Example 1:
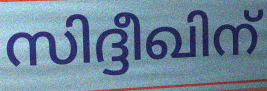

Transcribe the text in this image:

സിദ്ദീഖിന്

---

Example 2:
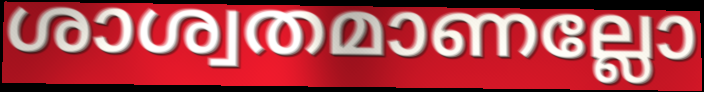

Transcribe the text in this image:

ശാശ്വതമാണല്ലോ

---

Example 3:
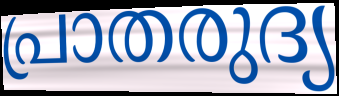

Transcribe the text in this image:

പ്രാതരുദ്യ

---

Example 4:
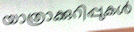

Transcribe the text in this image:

യാത്രാക്കുറിപ്പുകൾ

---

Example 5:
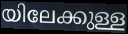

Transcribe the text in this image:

യിലേക്കുള്ള